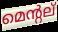
മെന്റല്